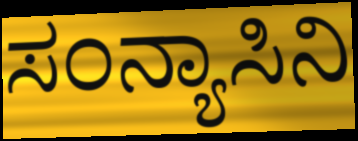
ಸಂನ್ಯಾಸಿನಿ